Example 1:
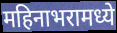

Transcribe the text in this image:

महिनाभरामध्ये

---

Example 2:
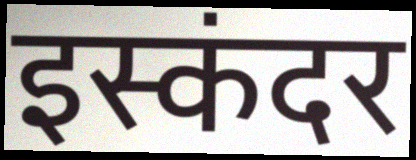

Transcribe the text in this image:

इस्कंदर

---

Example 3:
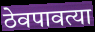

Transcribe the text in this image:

ठेवपावत्या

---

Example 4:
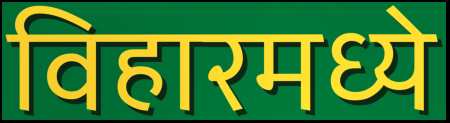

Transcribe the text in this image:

विहारमध्ये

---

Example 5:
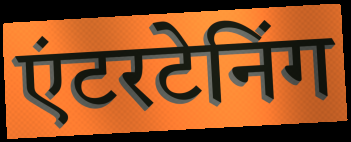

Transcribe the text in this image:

एंटरटेनिंग